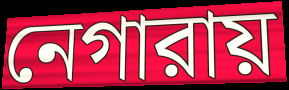
নেগারায়